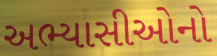
અભ્યાસીઓનો